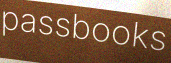
passbooks